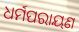
ଧର୍ମପରାୟଣ